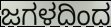
ಜಗಳದಿಂದ